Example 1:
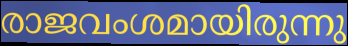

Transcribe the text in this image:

രാജവംശമായിരുന്നു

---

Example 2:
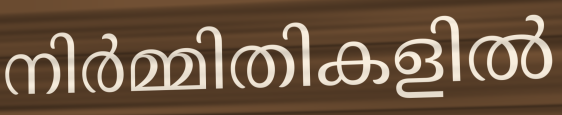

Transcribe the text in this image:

നിർമ്മിതികളിൽ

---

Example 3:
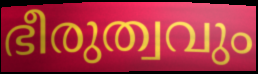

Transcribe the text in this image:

ഭീരുത്വവും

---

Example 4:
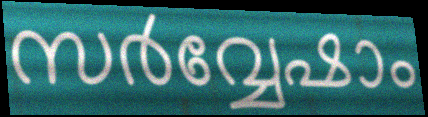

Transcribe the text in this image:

സർവ്വേഷാം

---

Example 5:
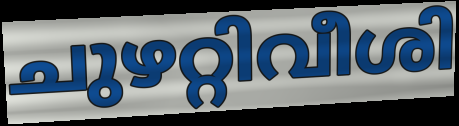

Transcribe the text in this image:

ചുഴറ്റിവീശി